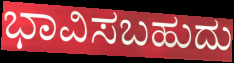
ಭಾವಿಸಬಹುದು